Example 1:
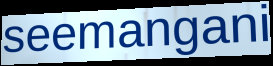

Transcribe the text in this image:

seemangani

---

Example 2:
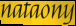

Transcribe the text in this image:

nataony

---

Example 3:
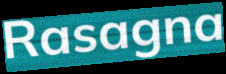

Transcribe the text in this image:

Rasagna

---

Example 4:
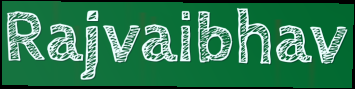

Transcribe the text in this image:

Rajvaibhav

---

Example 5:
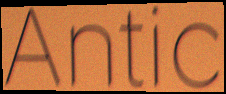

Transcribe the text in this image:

Antic